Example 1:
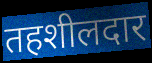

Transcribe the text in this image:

तहशीलदार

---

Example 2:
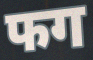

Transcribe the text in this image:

फग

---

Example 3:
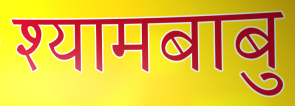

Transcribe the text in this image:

श्यामबाबु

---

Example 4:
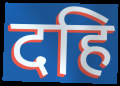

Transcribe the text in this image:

दहि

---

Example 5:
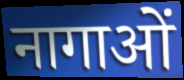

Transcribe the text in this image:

नागाओं